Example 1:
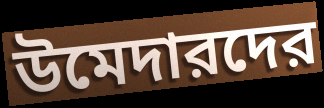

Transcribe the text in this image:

উমেদারদের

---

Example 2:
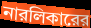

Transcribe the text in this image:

নারলিকারের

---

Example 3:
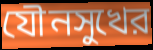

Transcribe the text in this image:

যৌনসুখের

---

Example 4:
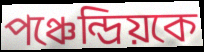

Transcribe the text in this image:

পঞ্চেন্দ্রিয়কে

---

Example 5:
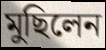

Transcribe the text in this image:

মুছিলেন